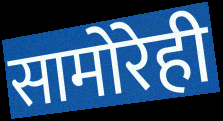
सामोरेही